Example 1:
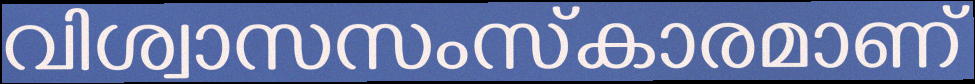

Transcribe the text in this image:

വിശ്വാസസംസ്‌കാരമാണ്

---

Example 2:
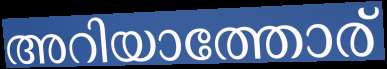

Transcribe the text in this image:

അറിയാത്തോര്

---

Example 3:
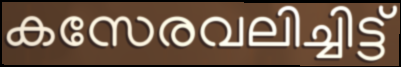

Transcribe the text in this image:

കസേരവലിച്ചിട്ട്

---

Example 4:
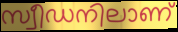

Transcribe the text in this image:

സ്വീഡനിലാണ്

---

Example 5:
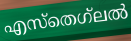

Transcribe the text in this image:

എസ്തെഗ്‌ലൽ